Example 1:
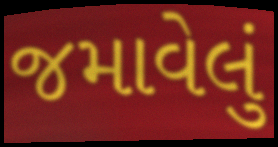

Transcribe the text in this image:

જમાવેલું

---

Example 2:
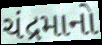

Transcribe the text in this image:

ચંદ્રમાનો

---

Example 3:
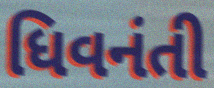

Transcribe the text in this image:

ધિવનંતી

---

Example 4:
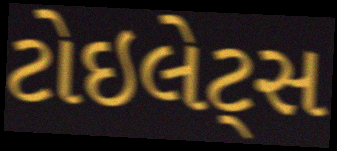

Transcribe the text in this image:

ટોઇલેટ્સ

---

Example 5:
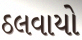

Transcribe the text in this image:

ઠલવાયો